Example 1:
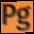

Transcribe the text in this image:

Pg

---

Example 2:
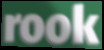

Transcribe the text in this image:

rook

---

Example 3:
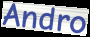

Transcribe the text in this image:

Andro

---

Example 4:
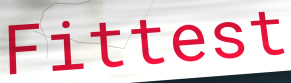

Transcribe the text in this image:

Fittest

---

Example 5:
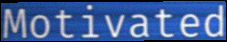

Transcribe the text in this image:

Motivated